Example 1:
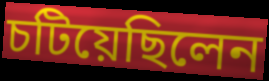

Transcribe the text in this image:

চটিয়েছিলেন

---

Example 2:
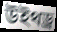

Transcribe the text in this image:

উইথড্র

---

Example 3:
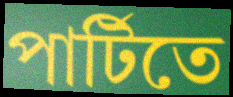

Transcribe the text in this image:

পার্টিতে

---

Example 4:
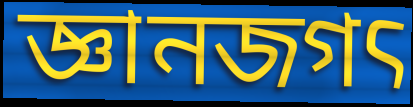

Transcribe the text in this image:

জ্ঞানজগৎ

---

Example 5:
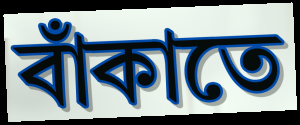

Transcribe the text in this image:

বাঁকাতে